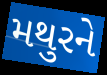
મથુરને